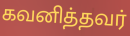
கவனித்தவர்